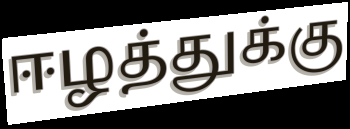
ஈழத்துக்கு